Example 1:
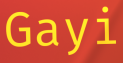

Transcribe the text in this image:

Gayi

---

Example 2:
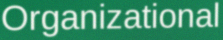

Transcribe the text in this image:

Organizational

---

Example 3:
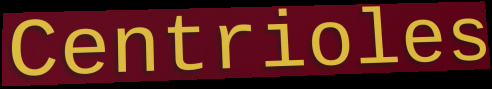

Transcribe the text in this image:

Centrioles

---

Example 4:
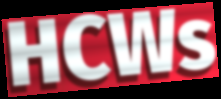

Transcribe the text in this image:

HCWs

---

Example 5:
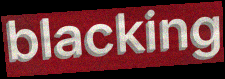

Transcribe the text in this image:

blacking